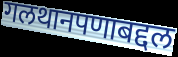
गलथानपणाबद्दल